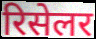
रिसेलर